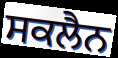
ਸਕਲੈਨ